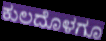
ಕುಲದೊಳಗೂ